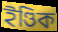
ইণ্ডিক